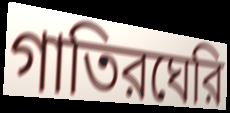
গাতিরঘেরি